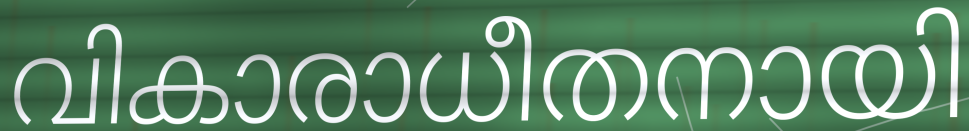
വികാരാധീതനായി